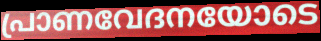
പ്രാണവേദനയോടെ